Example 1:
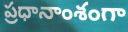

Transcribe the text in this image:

ప్రధానాంశంగా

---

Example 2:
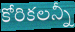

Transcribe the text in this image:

కోరికలన్నీ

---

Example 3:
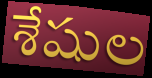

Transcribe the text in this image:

శేషుల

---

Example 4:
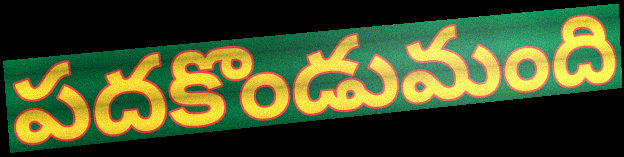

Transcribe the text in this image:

పదకొండుమంది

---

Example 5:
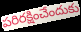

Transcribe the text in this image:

పరిరక్షించేందుకు